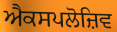
ਐਕਸਪਲੋਜ਼ਿਵ